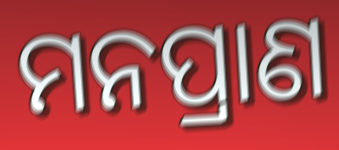
ମନପ୍ରାଣ